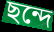
ছন্দে